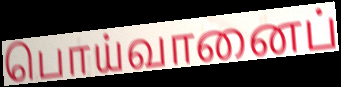
பொய்வானைப்